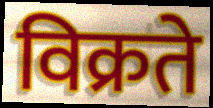
विक्रते